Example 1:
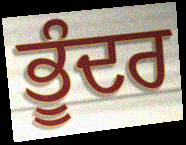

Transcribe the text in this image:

ਭੂੰਦਰ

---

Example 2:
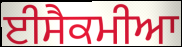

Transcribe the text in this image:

ਈਸੈਕਮੀਆ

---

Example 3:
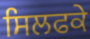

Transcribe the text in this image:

ਸਿਲਫਕੇ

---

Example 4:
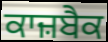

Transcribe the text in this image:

ਕਾਜ਼ਬੈਕ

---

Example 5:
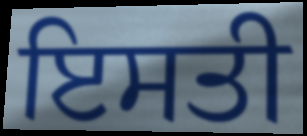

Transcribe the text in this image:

ਇਸਤੀ